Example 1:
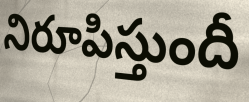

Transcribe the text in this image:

నిరూపిస్తుందీ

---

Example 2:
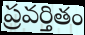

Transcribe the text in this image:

ప్రవర్తితం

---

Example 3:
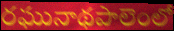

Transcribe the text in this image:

రఘునాథపాలెంలో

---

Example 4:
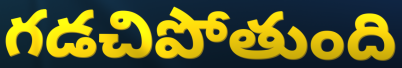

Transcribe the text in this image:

గడచిపోతుంది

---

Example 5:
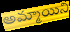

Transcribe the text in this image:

అమ్మాయిని